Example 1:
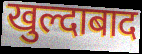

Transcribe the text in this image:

खुल्दाबाद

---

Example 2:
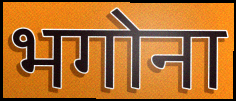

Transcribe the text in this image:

भगोना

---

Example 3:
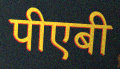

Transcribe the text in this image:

पीएबी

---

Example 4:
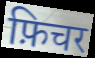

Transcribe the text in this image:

फ़िचर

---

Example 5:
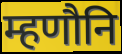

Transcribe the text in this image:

म्हणौनि